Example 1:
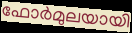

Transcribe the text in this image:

ഫോർമുലയായി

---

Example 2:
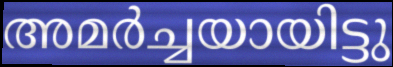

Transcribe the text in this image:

അമർച്ചയായിട്ടു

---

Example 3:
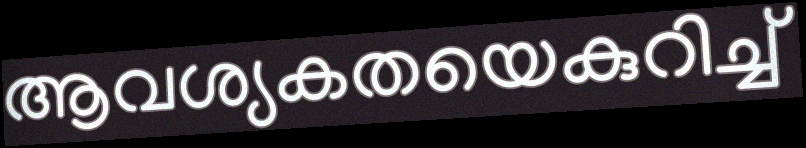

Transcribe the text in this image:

ആവശ്യകതയെകുറിച്ച്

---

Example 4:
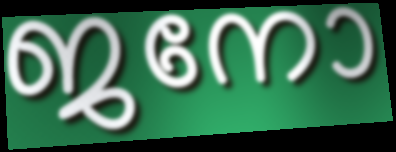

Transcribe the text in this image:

ജനോ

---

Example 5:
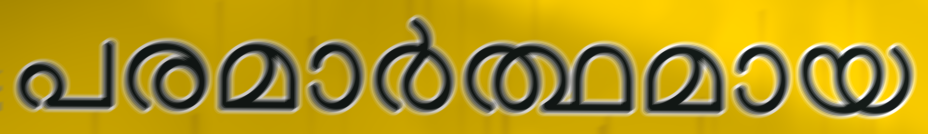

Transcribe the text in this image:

പരമാർത്ഥമായ